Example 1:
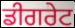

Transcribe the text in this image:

ਡੀਗਰੇਟ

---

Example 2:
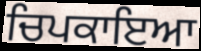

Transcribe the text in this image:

ਚਿਪਕਾਇਆ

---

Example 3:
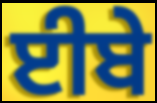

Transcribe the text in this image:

ਈਬੇ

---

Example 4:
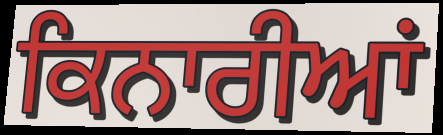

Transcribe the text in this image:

ਕਿਨਾਰੀਆਂ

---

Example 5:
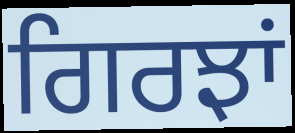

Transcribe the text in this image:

ਗਿਰਝਾਂ